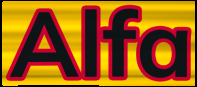
Alfa